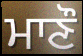
ਮਾਣੌ